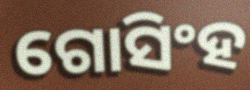
ଗୋସିଂହ